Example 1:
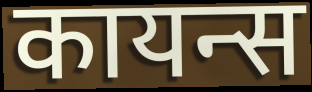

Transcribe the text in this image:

कायन्स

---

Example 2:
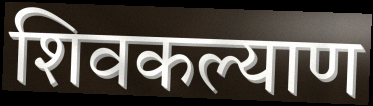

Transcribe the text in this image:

शिवकल्याण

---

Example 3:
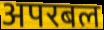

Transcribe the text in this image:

अपरबल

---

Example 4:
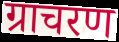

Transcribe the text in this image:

ग्राचरण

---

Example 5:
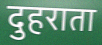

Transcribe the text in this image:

दुहराता